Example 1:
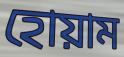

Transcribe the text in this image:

হোয়াম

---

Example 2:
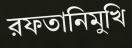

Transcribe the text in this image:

রফতানিমুখি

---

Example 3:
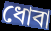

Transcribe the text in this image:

ধোবা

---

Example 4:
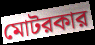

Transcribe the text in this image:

মোটরকার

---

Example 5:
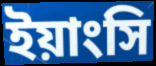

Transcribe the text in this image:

ইয়াংসি